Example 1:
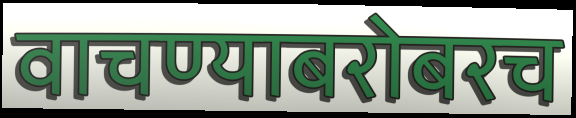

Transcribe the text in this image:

वाचण्याबरोबरच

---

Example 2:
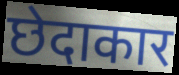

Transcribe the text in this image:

छेदाकार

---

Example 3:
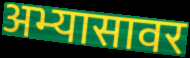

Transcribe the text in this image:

अभ्यासावर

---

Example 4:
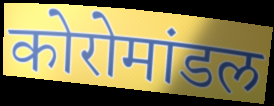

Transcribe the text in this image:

कोरोमांडल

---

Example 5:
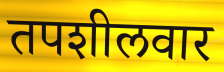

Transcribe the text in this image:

तपशीलवार